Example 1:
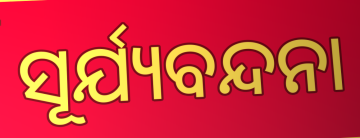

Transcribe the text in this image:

ସୂର୍ଯ୍ୟବନ୍ଦନା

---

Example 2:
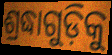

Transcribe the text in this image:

ଶ୍ରଦ୍ଧାଗୁଡ଼ିକୁ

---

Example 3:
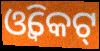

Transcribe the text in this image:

ଓ୍ଵିକେଟ୍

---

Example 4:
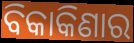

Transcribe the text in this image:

ବିକାକିଣାର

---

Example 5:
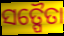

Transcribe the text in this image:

ସତ୍ପୈତା